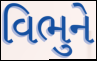
વિભુને